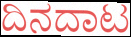
ದಿನದಾಟ